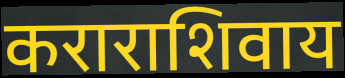
कराराशिवाय